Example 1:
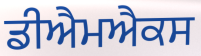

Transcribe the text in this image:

ਡੀਐਮਐਕਸ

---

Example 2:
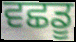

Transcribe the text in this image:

ਵਛਡੂ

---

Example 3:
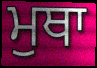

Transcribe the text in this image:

ਮੁਥਾ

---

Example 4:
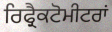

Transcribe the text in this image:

ਰਿਫ੍ਰੈਕਟੋਮੀਟਰਾਂ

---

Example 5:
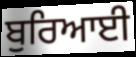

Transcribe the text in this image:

ਬੁਰਿਆਈ